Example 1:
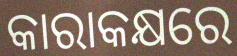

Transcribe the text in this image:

କାରାକକ୍ଷରେ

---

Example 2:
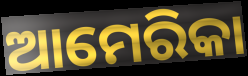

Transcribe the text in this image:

ଆମେରିକା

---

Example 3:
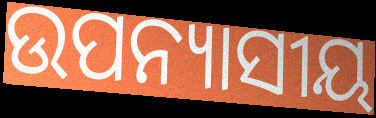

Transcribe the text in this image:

ଉପନ୍ୟାସୀୟ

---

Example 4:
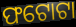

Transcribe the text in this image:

ଫଟୋଟା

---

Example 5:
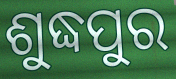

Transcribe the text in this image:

ଶୁଦ୍ଧପୁର